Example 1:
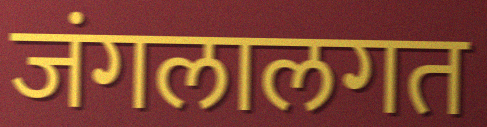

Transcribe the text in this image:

जंगलालगत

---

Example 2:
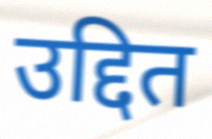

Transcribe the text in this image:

उद्दित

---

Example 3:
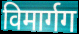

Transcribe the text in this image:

विमार्गग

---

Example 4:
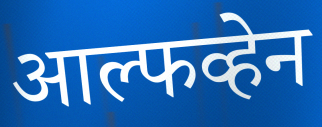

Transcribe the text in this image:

आल्फव्हेन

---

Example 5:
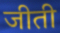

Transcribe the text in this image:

जीती